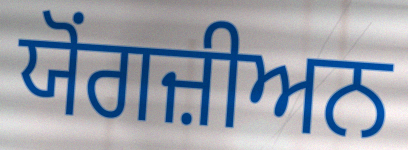
ਯੋਂਗਜ਼ੀਅਨ